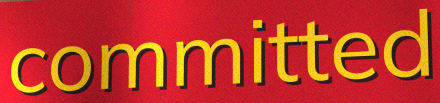
committed